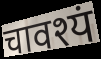
चावश्यं